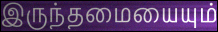
இருந்தமையையும்